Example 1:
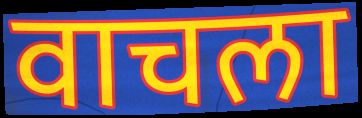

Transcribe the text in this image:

वाचला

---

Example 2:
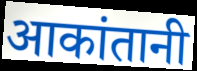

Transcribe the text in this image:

आकांतानी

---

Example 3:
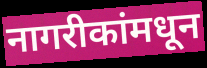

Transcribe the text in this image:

नागरीकांमधून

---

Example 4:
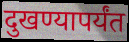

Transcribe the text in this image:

दुखण्यापर्यंत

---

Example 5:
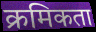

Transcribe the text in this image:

क्रमिकता